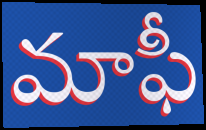
మాఫీ